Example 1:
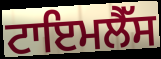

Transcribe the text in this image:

ਟਾਇਮਲੈੱਸ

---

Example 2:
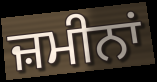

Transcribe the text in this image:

ਜ਼ਮੀਨਾਂ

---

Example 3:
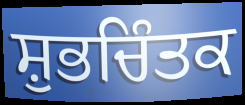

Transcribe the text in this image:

ਸ਼ੁਭਚਿੰਤਕ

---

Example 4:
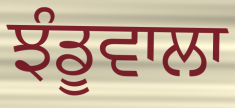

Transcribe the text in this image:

ਝੰਡੂਵਾਲਾ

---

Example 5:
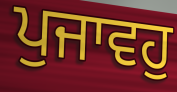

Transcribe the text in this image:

ਪੁਜਾਵਹੁ